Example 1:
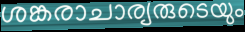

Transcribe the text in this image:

ശങ്കരാചാര്യരുടെയും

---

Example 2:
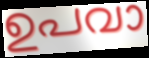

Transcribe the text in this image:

ഉപവാ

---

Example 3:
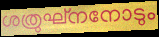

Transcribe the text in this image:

ശത്രുഘ്നനോടും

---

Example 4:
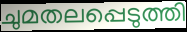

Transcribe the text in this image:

ചുമതലപ്പെടുത്തി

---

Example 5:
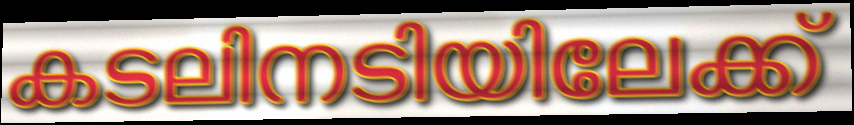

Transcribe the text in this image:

കടലിനടിയിലേക്ക്